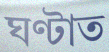
ঘণ্টাত